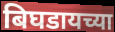
बिघडायच्या